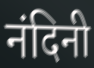
नंदिनी